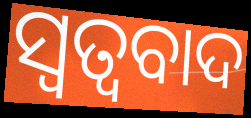
ସ୍ୱତ୍ୱବାଦ